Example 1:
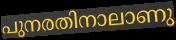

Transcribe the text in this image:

പുനരതിനാലാണു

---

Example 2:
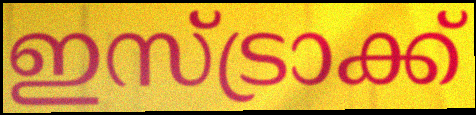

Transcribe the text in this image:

ഇസ്ട്രാക്ക്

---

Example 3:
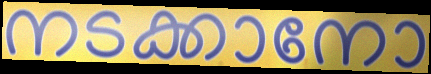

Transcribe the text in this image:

നടക്കാനോ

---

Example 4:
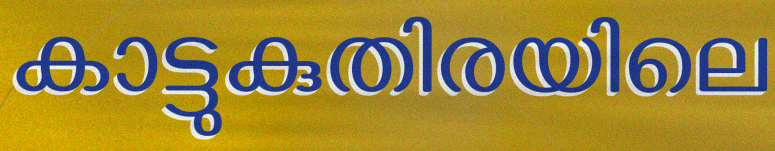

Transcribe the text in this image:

കാട്ടുകുതിരയിലെ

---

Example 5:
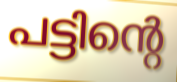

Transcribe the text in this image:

പട്ടിന്റെ